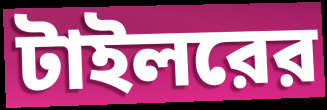
টাইলরের